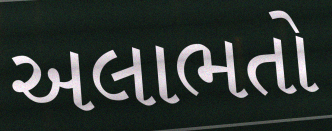
અલાભતો